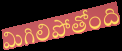
మిగిలిపోతోంది